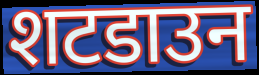
शटडाउन